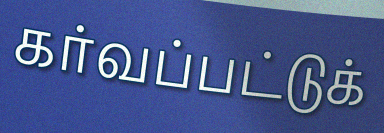
கர்வப்பட்டுக்